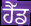
ਹੈੱਡ